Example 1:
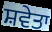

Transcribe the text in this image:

ਸ਼ਵੇਤਾ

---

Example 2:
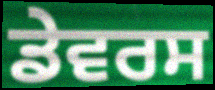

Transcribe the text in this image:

ਡੇਵਰਸ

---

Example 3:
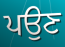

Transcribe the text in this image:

ਪਉਣ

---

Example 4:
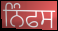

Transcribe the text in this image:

ਨਿੰਫਸ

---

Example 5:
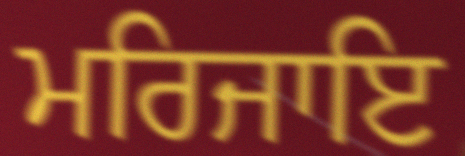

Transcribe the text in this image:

ਮਰਿਜਾਇ